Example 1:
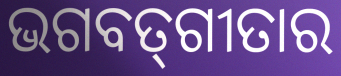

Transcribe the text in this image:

ଭଗବତ୍‍ଗୀତାର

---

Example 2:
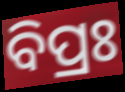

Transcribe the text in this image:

ବିପ୍ରଃ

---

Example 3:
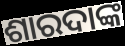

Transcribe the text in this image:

ଶାରଦାଙ୍କ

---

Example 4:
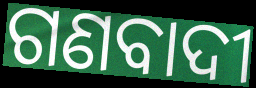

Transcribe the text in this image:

ଗଣବାଦୀ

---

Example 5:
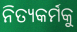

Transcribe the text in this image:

ନିତ୍ୟକର୍ମକୁ